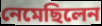
নেমেছিলেন